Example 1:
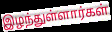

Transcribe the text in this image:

இழந்துள்ளார்கள்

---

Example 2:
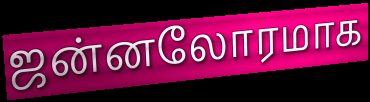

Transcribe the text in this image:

ஜன்னலோரமாக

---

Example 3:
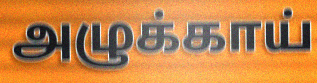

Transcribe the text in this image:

அழுக்காய்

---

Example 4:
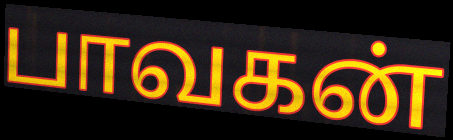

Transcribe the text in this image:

பாவகன்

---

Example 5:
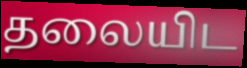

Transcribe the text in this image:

தலையிட